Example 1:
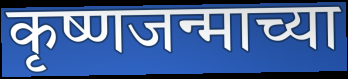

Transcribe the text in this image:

कृष्णजन्माच्या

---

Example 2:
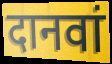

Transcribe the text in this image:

दानवां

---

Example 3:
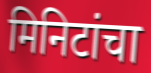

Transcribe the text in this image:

मिनिटांचा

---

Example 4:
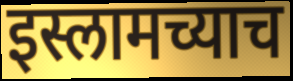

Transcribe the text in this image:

इस्लामच्याच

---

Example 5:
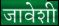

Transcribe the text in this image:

जावेशी